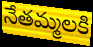
నేతమ్మలకి